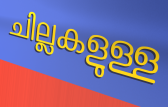
ചില്ലകളുള്ള